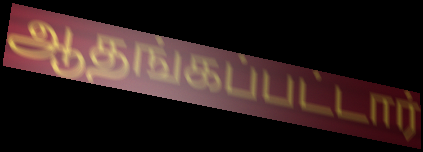
ஆதங்கப்பட்டார்